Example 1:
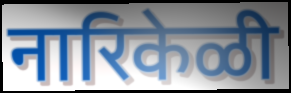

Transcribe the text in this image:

नारिकेळी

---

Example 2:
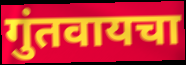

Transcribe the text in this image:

गुंतवायचा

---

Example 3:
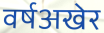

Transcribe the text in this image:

वर्षअखेर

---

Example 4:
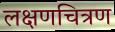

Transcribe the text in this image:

लक्षणचित्रण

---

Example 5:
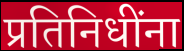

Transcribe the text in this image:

प्रतिनिधींना